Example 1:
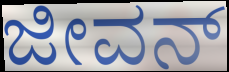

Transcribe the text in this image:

ಜೀವನ್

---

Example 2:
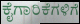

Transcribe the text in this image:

ಕೈಗಾರಿಕೆಗಳಿಗೆ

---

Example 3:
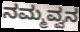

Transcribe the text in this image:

ನಮ್ಮವ್ವನ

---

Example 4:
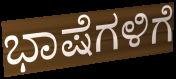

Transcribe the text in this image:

ಭಾಷೆಗಳಿಗೆ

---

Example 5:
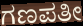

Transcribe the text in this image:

ಗಣಪತೀ